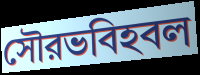
সৌরভবিহবল